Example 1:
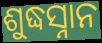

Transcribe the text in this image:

ଶୁଦ୍ଧସ୍ନାନ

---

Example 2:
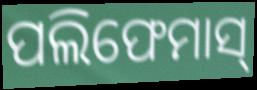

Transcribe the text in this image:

ପଲିଫେମାସ୍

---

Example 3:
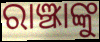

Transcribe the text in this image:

ରାଞ୍ଝାଙ୍କୁ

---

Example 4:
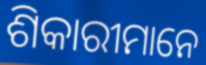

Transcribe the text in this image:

ଶିକାରୀମାନେ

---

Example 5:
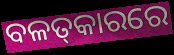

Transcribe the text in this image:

ବଳତ୍‌କାରରେ